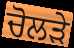
ਚੋਲੜੇ